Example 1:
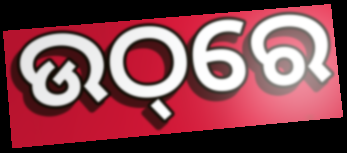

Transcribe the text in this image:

ଉଠ୍‌ରେ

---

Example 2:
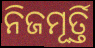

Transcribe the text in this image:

ନିଜମୂର୍ତ୍ତି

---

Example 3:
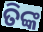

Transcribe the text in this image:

ତିଙ୍କ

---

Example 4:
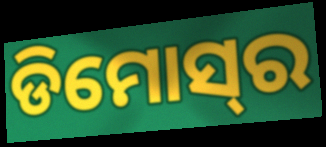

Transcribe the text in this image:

ଡିମୋସ୍‌ର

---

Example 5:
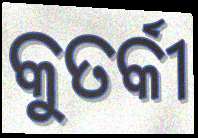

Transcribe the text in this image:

କୁତର୍କୀ